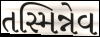
તસ્મિન્નેવ